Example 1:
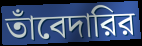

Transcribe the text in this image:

তাঁবেদারির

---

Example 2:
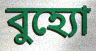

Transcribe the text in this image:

বুহ্যো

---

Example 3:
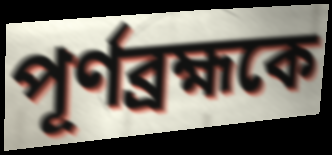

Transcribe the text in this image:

পূর্ণব্রহ্মকে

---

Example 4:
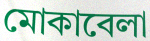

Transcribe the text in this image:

মোকাবেলা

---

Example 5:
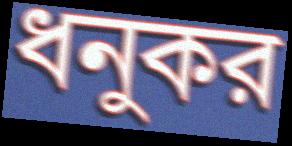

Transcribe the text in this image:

ধনুকর